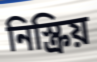
নিস্ক্রিয়